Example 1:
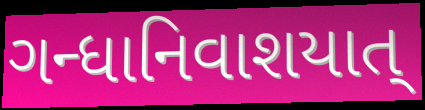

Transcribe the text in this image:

ગન્ધાનિવાશયાત્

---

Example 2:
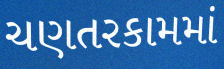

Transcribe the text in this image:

ચણતરકામમાં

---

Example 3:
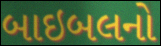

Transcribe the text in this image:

બાઇબલનો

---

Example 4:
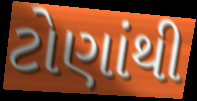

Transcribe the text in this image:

ટોણાંથી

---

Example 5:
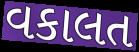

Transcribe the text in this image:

વકાલત